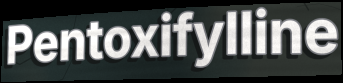
Pentoxifylline